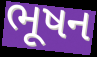
ભૂષન